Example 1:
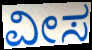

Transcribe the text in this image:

ವೀಸ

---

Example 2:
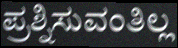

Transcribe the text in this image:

ಪ್ರಶ್ನಿಸುವಂತಿಲ್ಲ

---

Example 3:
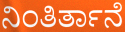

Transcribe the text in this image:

ನಿಂತಿರ್ತಾನೆ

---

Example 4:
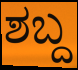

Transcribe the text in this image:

ಶಬ್ದ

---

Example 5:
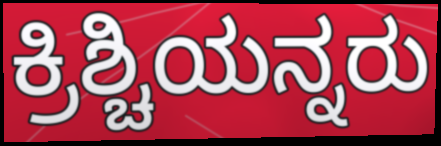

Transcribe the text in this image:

ಕ್ರಿಶ್ಚಿಯನ್ನರು